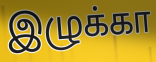
இழுக்கா